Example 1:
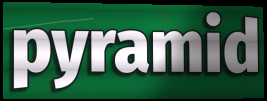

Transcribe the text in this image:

pyramid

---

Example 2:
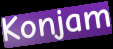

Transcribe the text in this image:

Konjam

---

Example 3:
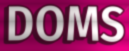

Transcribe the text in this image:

DOMS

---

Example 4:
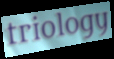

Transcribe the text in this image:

triology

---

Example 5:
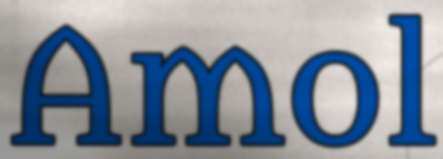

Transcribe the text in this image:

Amol